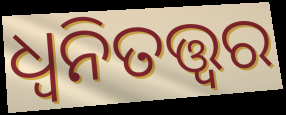
ଧ୍ଵନିତତ୍ତ୍ଵର